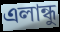
এলান্ধু